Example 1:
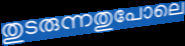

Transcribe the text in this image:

തുടരുന്നതുപോലെ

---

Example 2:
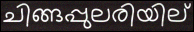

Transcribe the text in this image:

ചിങ്ങപ്പുലരിയില്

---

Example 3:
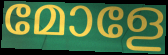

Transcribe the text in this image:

മോളേ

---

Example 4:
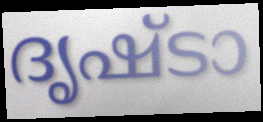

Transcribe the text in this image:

ദൃഷ്ടാ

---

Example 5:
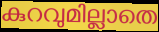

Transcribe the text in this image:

കുറവുമില്ലാതെ